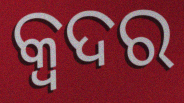
କ୍ୱଦର